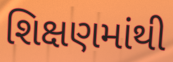
શિક્ષણમાંથી